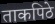
ताकपिठे